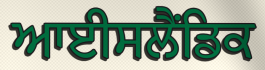
ਆਈਸਲੈਂਡਿਕ